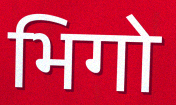
भिगो